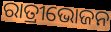
ରାତ୍ରୀଭୋଜନ